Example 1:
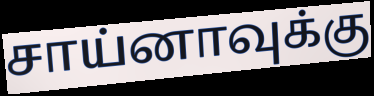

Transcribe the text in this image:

சாய்னாவுக்கு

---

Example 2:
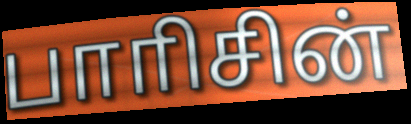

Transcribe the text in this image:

பாரிசின்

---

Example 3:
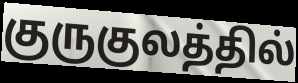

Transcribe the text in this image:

குருகுலத்தில்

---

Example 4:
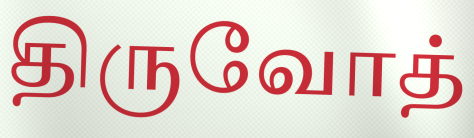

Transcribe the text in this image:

திருவோத்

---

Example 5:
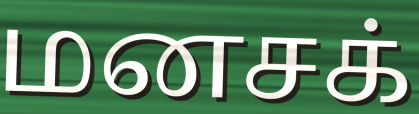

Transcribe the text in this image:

மனசக்